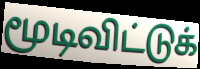
மூடிவிட்டுக்